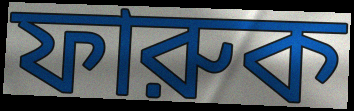
ফারুক